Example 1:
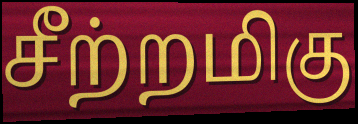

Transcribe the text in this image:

சீற்றமிகு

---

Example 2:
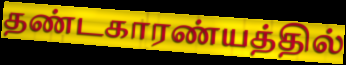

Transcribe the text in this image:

தண்டகாரண்யத்தில்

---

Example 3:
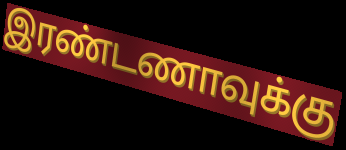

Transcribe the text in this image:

இரண்டணாவுக்கு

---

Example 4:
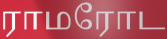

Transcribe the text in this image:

ராமரோட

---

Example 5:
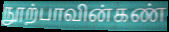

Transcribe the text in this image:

நூற்பாவின்கண்